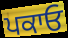
ਪਕਾਓ